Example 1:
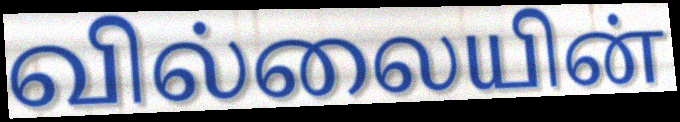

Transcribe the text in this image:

வில்லையின்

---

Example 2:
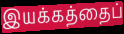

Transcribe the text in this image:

இயக்கத்தைப்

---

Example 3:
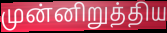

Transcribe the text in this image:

முன்னிறுத்திய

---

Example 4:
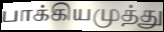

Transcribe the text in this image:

பாக்கியமுத்து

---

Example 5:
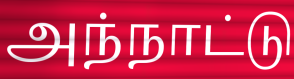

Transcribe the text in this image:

அந்நாட்டு